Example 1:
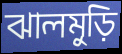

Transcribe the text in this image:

ঝালমুড়ি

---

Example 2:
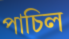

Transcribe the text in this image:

পাচিল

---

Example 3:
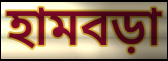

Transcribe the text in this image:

হামবড়া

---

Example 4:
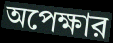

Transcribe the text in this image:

অপেক্ষার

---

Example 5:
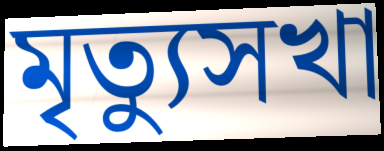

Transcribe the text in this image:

মৃত্যুসখা